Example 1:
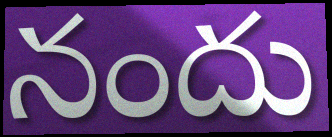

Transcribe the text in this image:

నందు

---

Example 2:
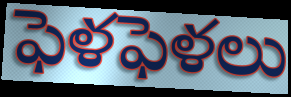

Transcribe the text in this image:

ఫెళఫెళలు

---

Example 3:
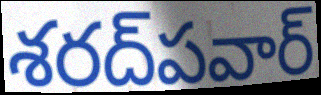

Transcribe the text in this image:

శరద్‌పవార్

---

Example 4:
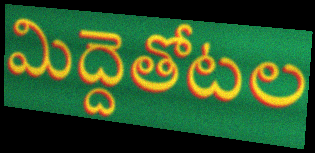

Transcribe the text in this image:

మిద్దెతోటల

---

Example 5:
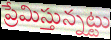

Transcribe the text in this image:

ప్రేమిస్తున్నట్టు